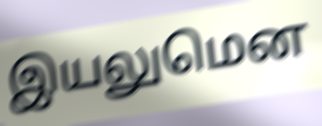
இயலுமென